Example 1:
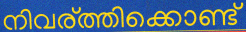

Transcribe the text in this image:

നിവര്ത്തിക്കൊണ്ട്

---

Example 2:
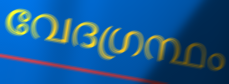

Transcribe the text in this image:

വേദഗ്രന്ഥം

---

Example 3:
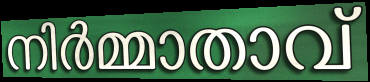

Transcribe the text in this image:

നിർമ്മാതാവ്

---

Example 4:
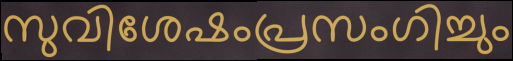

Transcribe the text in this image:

സുവിശേഷംപ്രസംഗിച്ചും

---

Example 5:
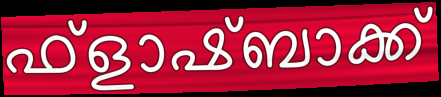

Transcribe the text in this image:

ഫ്ളാഷ്ബാക്ക്